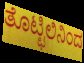
ತೊಟ್ಟಿಲಿನಿಂದ